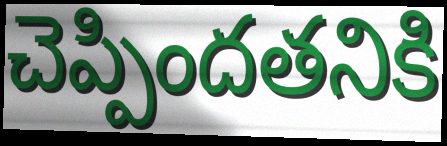
చెప్పిందతనికి